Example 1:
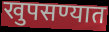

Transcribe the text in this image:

खुपसण्यात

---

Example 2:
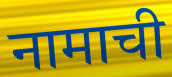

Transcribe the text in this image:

नामाची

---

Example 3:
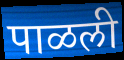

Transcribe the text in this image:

पाळली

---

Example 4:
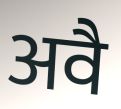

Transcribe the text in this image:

अवै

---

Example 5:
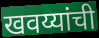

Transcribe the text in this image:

खवय्यांची